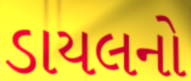
ડાયલનો